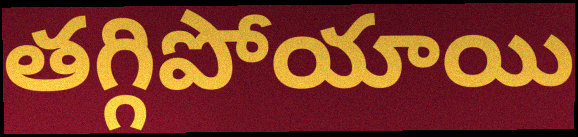
తగ్గిపోయాయి